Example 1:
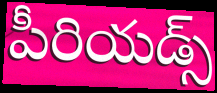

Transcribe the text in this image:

పీరియడ్స్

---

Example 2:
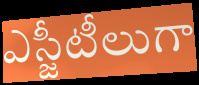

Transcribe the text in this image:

ఎస్జీటీలుగా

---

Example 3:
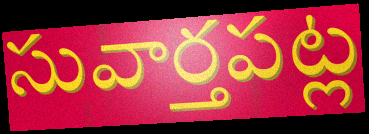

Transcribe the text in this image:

సువార్తపట్ల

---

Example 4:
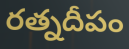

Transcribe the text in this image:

రత్నదీపం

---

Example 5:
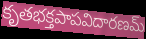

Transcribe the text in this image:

కృతభక్తపాపవిదారణమ్